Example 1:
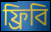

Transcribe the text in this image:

ফ্রিবি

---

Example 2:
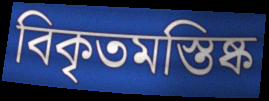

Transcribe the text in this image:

বিকৃতমস্তিষ্ক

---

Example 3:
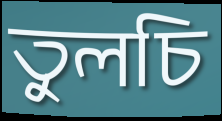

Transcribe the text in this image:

তুলচি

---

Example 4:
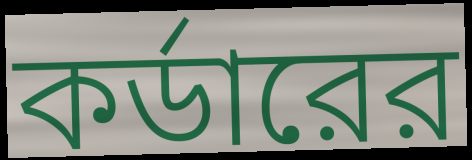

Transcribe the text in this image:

কর্ডারের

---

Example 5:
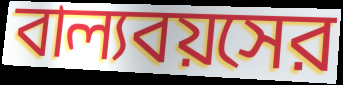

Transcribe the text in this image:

বাল্যবয়সের